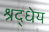
श्रद्धेय